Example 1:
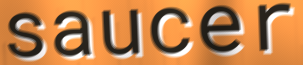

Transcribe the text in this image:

saucer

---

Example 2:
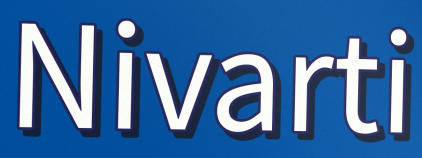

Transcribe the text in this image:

Nivarti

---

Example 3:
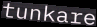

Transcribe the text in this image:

tunkare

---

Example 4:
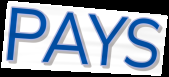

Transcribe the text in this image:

PAYS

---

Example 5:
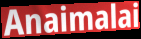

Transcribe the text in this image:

Anaimalai